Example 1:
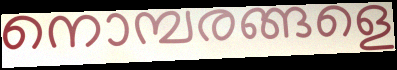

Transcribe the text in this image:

നൊമ്പരങ്ങളെ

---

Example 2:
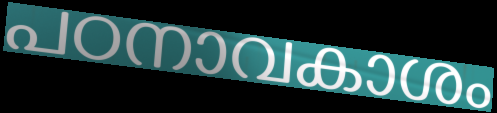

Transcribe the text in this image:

പഠനാവകാശം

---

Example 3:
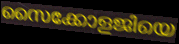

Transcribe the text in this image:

സൈക്കോളജിയെ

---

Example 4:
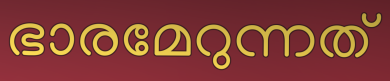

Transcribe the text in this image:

ഭാരമേറുന്നത്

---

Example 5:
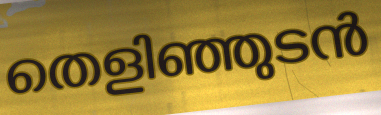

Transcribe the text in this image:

തെളിഞ്ഞുടൻ